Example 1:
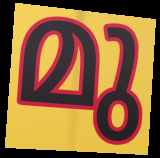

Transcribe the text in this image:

മു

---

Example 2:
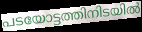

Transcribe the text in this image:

പടയോട്ടത്തിനിടയിൽ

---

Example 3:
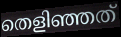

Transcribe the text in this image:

തെളിഞ്ഞത്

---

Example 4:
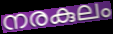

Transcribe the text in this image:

നരകുലം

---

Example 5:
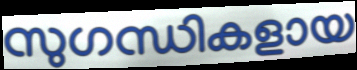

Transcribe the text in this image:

സുഗന്ധികളായ